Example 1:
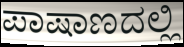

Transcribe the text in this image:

ಪಾಷಾಣದಲ್ಲಿ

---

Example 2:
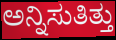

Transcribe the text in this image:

ಅನ್ನಿಸುತಿತ್ತು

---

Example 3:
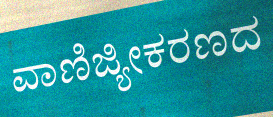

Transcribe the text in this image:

ವಾಣಿಜ್ಯೀಕರಣದ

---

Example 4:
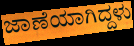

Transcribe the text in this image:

ಜಾಣೆಯಾಗಿದ್ದಳು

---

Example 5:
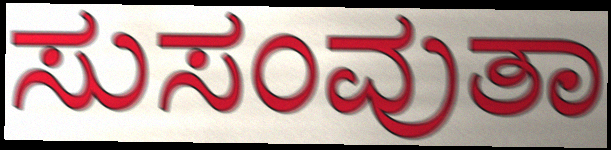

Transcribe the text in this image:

ಸುಸಂವುತಾ